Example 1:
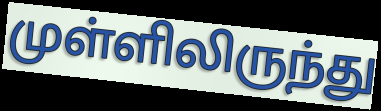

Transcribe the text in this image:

முள்ளிலிருந்து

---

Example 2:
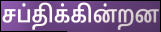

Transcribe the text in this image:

சப்திக்கின்றன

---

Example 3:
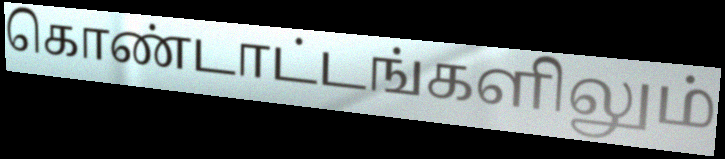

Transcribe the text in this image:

கொண்டாட்டங்களிலும்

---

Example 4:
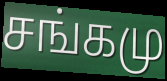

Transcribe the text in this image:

சங்கமு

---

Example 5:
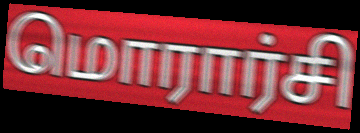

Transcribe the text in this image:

மொரார்சி